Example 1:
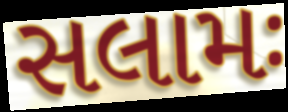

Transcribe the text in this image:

સલામઃ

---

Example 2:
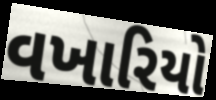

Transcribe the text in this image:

વખારિયો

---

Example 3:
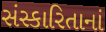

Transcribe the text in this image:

સંસ્કારિતાનાં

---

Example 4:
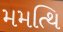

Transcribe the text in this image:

મમત્થિ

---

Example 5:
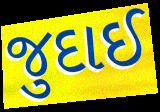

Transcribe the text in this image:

જુદાઈ